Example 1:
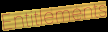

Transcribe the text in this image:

Entitlements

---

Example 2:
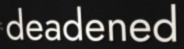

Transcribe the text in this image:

deadened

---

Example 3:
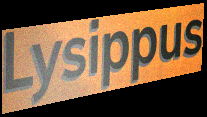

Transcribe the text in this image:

Lysippus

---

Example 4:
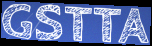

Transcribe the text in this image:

GSTTA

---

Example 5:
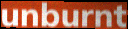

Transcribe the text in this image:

unburnt